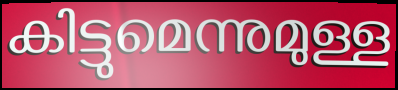
കിട്ടുമെന്നുമുള്ള